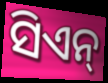
ସିଏନ୍